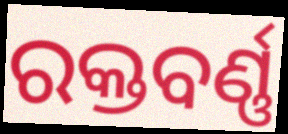
ରକ୍ତବର୍ଣ୍ଣ